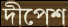
দীপেশ